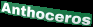
Anthoceros